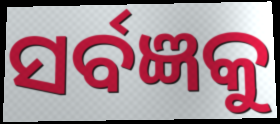
ସର୍ବଜ୍ଞକୁ